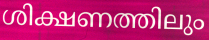
ശിക്ഷണത്തിലും